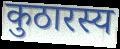
कुठारस्य